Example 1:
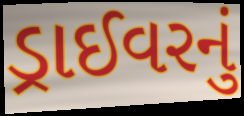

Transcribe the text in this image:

ડ્રાઈવરનું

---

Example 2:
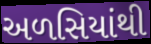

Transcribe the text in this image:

અળસિયાંથી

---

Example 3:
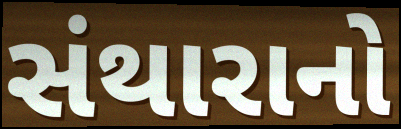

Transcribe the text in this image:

સંથારાનો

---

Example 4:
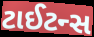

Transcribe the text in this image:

ટાઈટન્સ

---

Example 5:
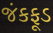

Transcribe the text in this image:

જંકફૂડ